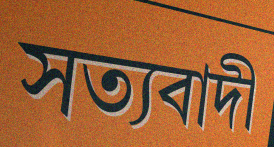
সত্যবাদী